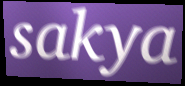
sakya